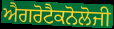
ਐਗਰੋਟੈਕਨੋਲੋਜੀ